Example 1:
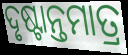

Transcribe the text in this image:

ଦୃଷ୍ଟାନ୍ତମାତ୍ର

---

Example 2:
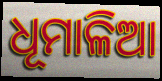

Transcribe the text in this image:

ଧୂମାଳିଆ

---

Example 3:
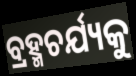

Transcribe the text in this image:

ବ୍ରହ୍ମଚର୍ଯ୍ୟକୁ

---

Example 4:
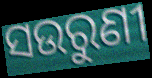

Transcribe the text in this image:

ସଉରୁଣୀ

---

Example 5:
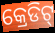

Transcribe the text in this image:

କ୍ରେଡିଟ୍